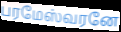
பரமேஸ்வரனே